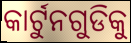
କାର୍ଟୁନଗୁଡିକୁ